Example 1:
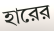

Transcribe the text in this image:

হারের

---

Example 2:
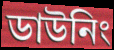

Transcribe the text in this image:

ডাউনিং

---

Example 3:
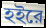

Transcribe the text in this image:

হইরে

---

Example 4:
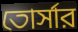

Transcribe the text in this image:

তোর্সার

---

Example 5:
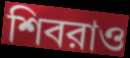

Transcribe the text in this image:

শিবরাও